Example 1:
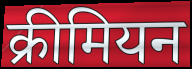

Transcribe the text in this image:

क्रीमियन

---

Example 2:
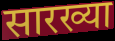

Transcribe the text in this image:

सारख्या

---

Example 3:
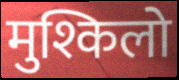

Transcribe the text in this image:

मुश्किलो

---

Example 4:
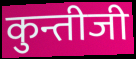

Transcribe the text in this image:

कुन्तीजी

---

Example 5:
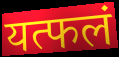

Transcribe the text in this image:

यत्फलं